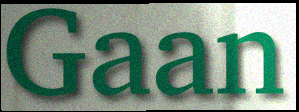
Gaan